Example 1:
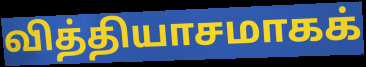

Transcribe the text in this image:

வித்தியாசமாகக்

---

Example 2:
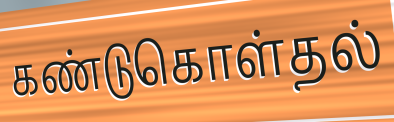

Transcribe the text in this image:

கண்டுகொள்தல்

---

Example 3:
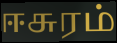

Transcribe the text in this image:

ஈசுரம்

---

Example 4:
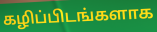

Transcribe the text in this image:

கழிப்பிடங்களாக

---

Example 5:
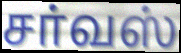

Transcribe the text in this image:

சர்வஸ்